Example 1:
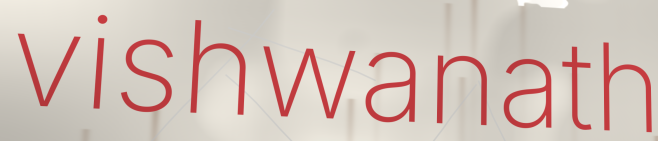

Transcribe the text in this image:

vishwanath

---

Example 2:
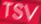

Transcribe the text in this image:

TSV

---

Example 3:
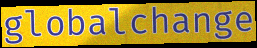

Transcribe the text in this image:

globalchange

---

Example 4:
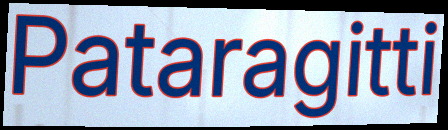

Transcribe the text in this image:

Pataragitti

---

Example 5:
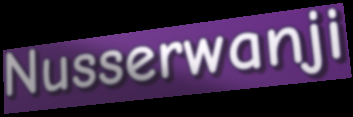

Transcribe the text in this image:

Nusserwanji